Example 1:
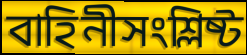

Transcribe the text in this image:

বাহিনীসংশ্লিষ্ট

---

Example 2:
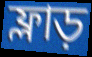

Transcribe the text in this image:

ফ্লাড়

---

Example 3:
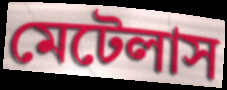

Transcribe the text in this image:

মেটেলাস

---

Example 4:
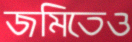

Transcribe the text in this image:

জমিতেও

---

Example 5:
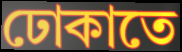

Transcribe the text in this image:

ঢোকাতে